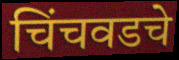
चिंचवडचे